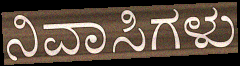
ನಿವಾಸಿಗಳು